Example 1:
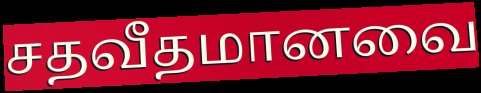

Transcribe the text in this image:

சதவீதமானவை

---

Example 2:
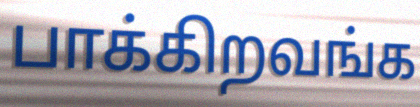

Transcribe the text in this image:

பாக்கிறவங்க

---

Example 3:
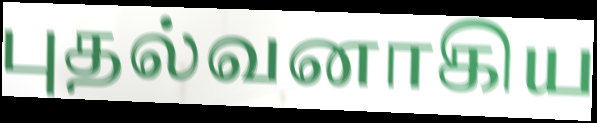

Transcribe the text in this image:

புதல்வனாகிய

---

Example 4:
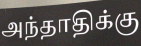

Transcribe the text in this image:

அந்தாதிக்கு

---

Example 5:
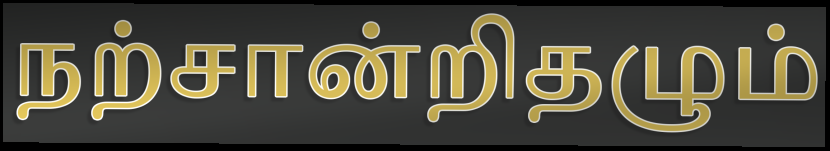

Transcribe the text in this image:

நற்சான்றிதழும்